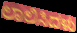
ಲಾಲಿಸಿದಳು